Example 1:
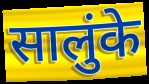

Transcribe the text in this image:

सालुंके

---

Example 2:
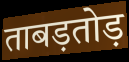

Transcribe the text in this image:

ताबड़तोड़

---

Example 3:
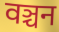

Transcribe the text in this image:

वञ्चन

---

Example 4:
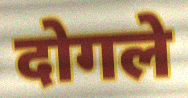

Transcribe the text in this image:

दोगले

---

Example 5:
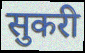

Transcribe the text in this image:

सुकरी